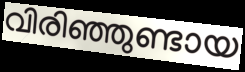
വിരിഞ്ഞുണ്ടായ